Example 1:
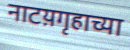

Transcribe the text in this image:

नाटय़गृहाच्या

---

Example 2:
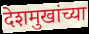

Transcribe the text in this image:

देशमुखांच्या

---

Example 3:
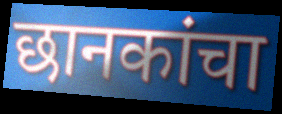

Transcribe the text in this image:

छानकांचा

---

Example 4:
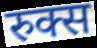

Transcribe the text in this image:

रुक्स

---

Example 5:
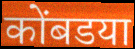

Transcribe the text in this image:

कोंबडया